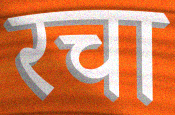
रचा